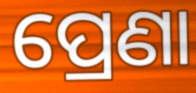
ପ୍ରେଣା